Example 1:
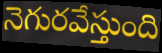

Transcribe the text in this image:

నెగురవేస్తుంది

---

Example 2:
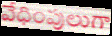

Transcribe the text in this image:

వేధింపులుగా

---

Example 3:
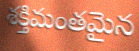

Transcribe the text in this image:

శక్తిమంతమైన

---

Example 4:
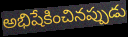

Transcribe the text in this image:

అభిషేకించినప్పుడు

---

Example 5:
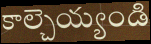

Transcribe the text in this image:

కాల్చెయ్యండి